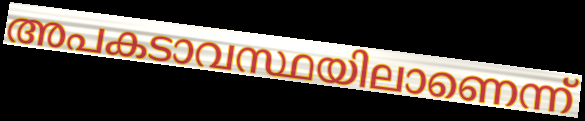
അപകടാവസ്ഥയിലാണെന്ന്